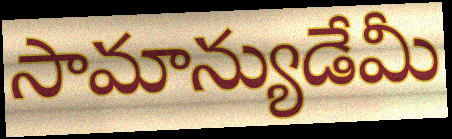
సామాన్యుడేమీ